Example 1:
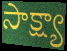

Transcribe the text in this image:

సాక్ష్యా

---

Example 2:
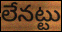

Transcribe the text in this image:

లేనట్టు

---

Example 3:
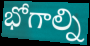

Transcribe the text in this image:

భోగాల్ని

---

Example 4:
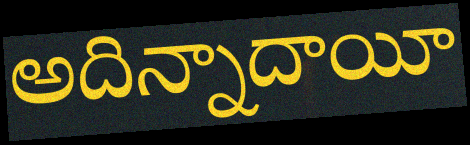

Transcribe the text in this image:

అదిన్నాదాయీ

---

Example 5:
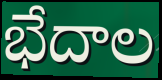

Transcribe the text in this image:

భేదాల